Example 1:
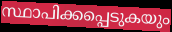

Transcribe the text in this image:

സ്ഥാപിക്കപ്പെടുകയും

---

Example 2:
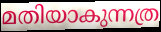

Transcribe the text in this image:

മതിയാകുന്നത്ര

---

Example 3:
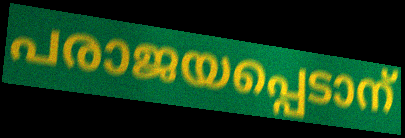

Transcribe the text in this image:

പരാജയപ്പെടാന്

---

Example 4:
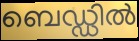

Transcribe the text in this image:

ബെഡ്ഡിൽ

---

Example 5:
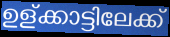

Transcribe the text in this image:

ഉള്ക്കാട്ടിലേക്ക്